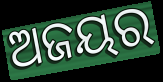
ଅଜୟର